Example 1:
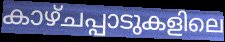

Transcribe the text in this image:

കാഴ്ചപ്പാടുകളിലെ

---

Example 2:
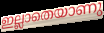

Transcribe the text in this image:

ഇല്ലാതെയാണു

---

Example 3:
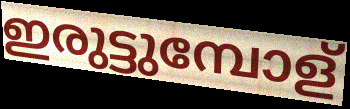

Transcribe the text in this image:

ഇരുട്ടുമ്പോള്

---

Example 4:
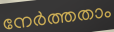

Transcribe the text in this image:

നേർത്തതാം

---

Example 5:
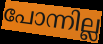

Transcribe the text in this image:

പോന്നില്ല